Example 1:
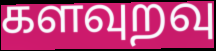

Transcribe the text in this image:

களவுறவு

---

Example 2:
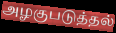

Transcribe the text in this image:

அழகுபடுத்தல்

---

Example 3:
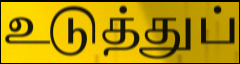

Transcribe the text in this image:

உடுத்துப்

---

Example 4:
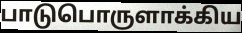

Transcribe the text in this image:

பாடுபொருளாக்கிய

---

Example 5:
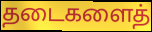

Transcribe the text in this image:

தடைகளைத்